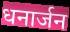
धनार्जन